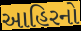
આહિરનો